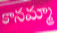
కానమ్మా